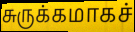
சுருக்கமாகச்